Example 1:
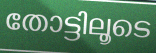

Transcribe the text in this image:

തോട്ടിലൂടെ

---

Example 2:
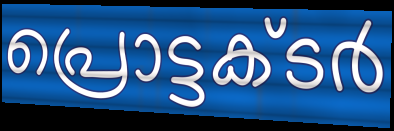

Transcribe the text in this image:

പ്രൊട്ടക്ടർ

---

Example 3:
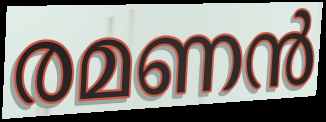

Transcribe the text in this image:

രമണൻ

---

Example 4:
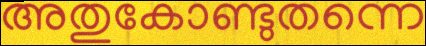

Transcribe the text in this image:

അതുകോണ്ടുതന്നെ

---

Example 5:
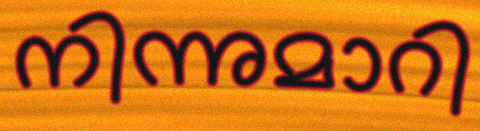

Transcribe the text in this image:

നിന്നുമാറി